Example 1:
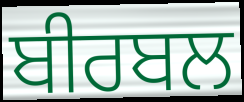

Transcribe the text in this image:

ਬੀਰਬਲ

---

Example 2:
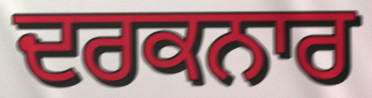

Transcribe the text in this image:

ਦਰਕਨਾਰ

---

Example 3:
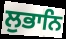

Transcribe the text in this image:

ਲੁਭਾਨਿ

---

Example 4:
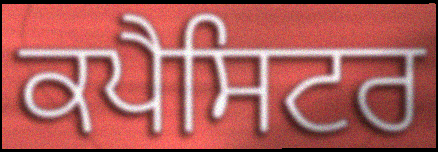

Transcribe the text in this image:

ਕਪੈਸਿਟਰ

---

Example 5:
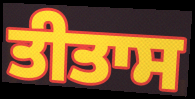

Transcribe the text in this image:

ਤੀਤਾਸ